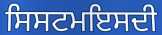
ਸਿਸਟਮਇਸਦੀ